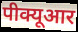
पीक्यूआर